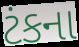
ટંકના